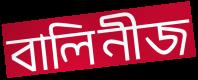
বালিনীজ